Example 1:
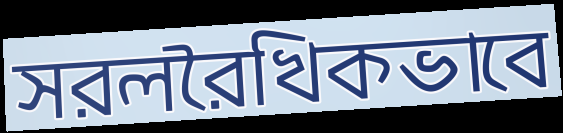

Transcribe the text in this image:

সরলরৈখিকভাবে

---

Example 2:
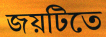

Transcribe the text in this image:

জয়টিতে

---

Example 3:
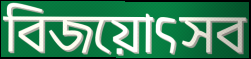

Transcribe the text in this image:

বিজয়োৎসব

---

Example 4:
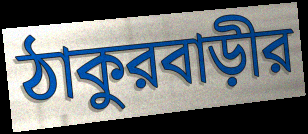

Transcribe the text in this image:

ঠাকুরবাড়ীর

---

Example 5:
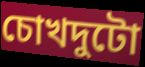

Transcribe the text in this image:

চোখদুটো